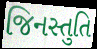
જિનસ્તુતિ